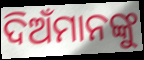
ଦିଅଁମାନଙ୍କୁ